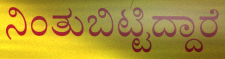
ನಿಂತುಬಿಟ್ಟಿದ್ದಾರೆ